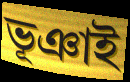
ভূঞাই